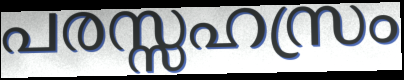
പരസ്സഹസ്രം